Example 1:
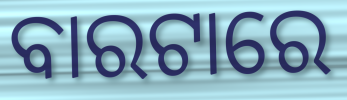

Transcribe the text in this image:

ବାରଟାରେ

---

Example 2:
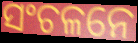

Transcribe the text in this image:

ସଂଚଳନେ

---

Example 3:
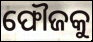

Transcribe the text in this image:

ଫୌଜକୁ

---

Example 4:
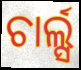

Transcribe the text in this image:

ଚାର୍ଲ୍ସ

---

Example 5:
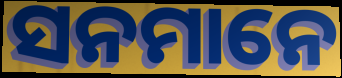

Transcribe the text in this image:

ସନମାନେ